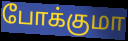
போக்குமா